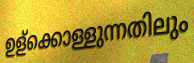
ഉള്ക്കൊള്ളുന്നതിലും